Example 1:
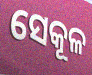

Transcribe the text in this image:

ସେକୂଳ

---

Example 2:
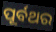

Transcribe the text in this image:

ପୂର୍ବଥର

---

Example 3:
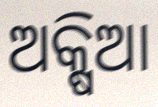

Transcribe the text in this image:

ଅକ୍ଷିଆ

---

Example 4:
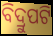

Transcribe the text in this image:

ବିଦ୍ରୁପଟି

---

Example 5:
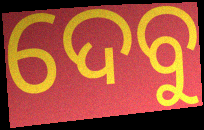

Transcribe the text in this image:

ଦେବୁ